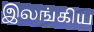
இலங்கிய